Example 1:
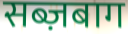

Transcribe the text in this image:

सब्ज़बाग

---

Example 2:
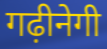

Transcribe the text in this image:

गढ़ीनेगी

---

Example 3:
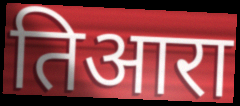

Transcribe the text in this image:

तिआरा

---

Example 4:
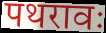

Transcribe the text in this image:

पथरावः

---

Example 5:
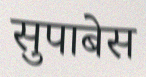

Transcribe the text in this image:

सुपाबेस